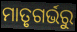
ମାତୃଗର୍ଭରୁ